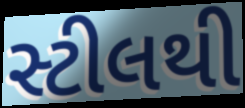
સ્ટીલથી